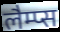
लैम्प्स